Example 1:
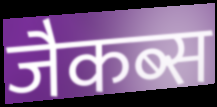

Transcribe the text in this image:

जैकब्स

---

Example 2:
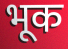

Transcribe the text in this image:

भूक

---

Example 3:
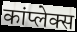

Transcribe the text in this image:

कांप्लेक्स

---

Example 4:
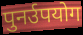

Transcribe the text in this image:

पुनर्उपयोग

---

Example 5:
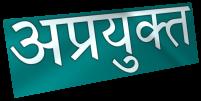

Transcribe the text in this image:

अप्रयुक्त